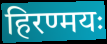
हिरण्मयः